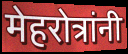
मेहरोत्रांनी